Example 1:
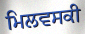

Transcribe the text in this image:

ਮਿਲਵਸਕੀ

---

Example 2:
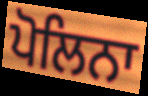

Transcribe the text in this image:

ਪੋਲਿਨਾ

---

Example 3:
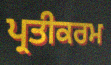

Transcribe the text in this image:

ਪ੍ਰਤੀਕਰਮ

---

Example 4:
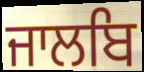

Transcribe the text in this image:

ਜਾਲਬਿ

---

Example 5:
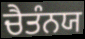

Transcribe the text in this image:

ਚੈਤੰਨਯ